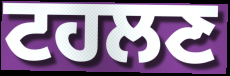
ਟਹਲਣ